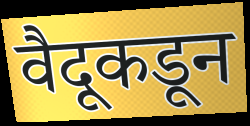
वैदूकडून